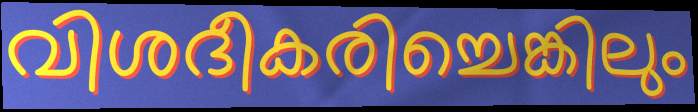
വിശദീകരിച്ചെങ്കിലും